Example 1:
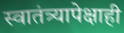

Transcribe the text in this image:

स्वातंत्र्यापेक्षाही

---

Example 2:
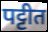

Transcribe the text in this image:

पट्टीत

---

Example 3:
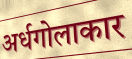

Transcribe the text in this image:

अर्धगोलाकार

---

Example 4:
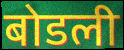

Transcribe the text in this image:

बोडली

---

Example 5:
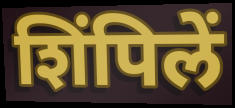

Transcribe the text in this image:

शिंपिलें